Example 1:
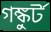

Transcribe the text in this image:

গঙ্কুর্ট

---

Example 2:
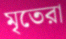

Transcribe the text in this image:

মৃতেরা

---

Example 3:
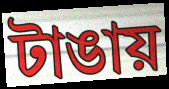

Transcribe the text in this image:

টাঙায়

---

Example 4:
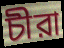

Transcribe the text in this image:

চীরা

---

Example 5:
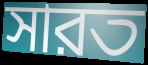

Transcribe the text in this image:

সারত